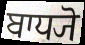
ਬਾਧ੍ਯੋ